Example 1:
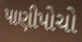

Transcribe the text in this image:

પાણીપોચો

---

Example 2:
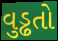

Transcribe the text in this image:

વુડ્ઢતો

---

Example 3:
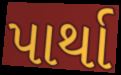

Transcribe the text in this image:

પાર્થા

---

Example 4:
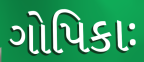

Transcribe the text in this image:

ગોપિકાઃ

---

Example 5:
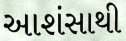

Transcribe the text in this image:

આશંસાથી